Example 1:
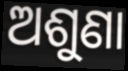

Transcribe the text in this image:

ଅଶୁଣା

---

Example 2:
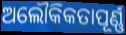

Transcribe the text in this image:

ଅଲୌକିକତାପୂର୍ଣ୍ଣ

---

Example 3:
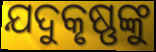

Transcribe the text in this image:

ଯଦୁକୃଷ୍ଣଙ୍କୁ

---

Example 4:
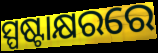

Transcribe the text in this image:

ସ୍ପଷ୍ଟାକ୍ଷରରେ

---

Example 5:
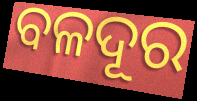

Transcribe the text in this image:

ବଳଦୂର